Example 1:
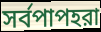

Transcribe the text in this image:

সর্বপাপহরা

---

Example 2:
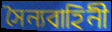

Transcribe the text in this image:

সৈন্যবাহিনী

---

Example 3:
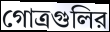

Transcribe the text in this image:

গোত্রগুলির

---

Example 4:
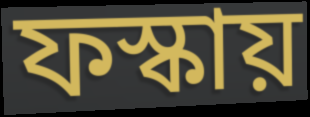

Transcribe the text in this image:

ফস্কায়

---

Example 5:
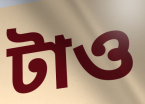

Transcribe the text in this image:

টাও